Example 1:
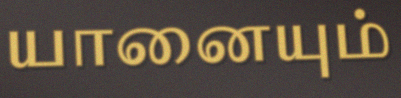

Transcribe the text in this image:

யானையும்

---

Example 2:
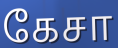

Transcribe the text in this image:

கேசா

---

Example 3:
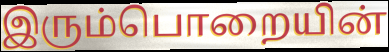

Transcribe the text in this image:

இரும்பொறையின்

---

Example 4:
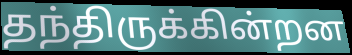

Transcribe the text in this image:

தந்திருக்கின்றன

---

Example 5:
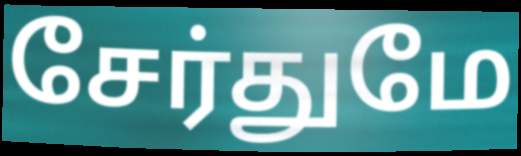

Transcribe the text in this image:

சேர்துமே